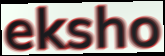
eksho